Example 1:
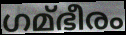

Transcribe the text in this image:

ഗമ്ഭീരം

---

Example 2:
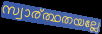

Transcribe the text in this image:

സ്വാര്ത്ഥതയല്ലേ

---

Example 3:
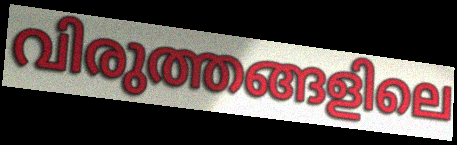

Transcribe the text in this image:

വിരുത്തങ്ങളിലെ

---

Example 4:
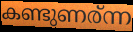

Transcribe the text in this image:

കണ്ടുണര്ന്ന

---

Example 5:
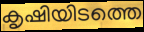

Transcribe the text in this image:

കൃഷിയിടത്തെ